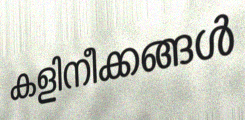
കളിനീക്കങ്ങൾ